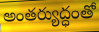
అంతర్యుద్ధంతో